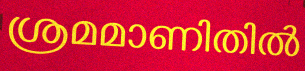
ശ്രമമാണിതിൽ